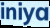
iniya